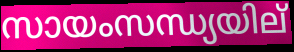
സായംസന്ധ്യയില്